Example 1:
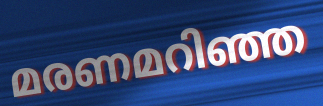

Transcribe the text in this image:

മരണമറിഞ്ഞ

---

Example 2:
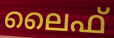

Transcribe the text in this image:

ലൈഫ്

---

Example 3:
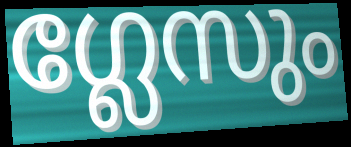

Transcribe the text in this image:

ഗ്ലേസും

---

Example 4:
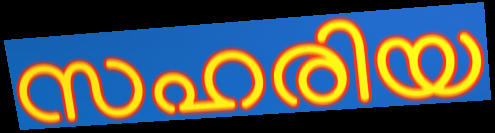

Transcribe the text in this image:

സഹരിയ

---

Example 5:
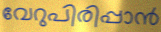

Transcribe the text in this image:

വേറുപിരിപ്പാൻ